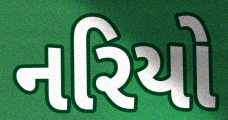
નરિયો